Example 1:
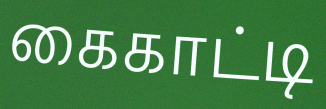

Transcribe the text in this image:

கைகாட்டி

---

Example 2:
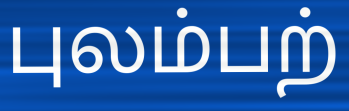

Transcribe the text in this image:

புலம்பற்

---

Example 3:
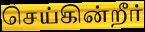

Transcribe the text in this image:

செய்கின்றீர்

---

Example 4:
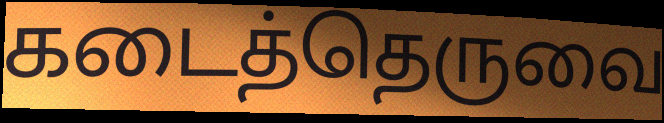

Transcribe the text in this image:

கடைத்தெருவை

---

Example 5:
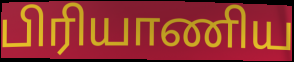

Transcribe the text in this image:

பிரியாணிய